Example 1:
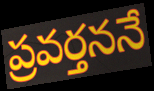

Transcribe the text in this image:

ప్రవర్తననే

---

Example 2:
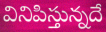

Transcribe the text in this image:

వినిపిస్తున్నదే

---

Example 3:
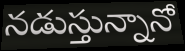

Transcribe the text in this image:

నడుస్తున్నానో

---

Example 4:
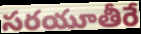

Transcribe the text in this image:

సరయూతీరే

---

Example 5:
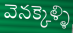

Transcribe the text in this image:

వెనక్కెళ్ళి